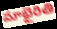
మాభైరితి